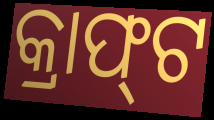
କ୍ରାଫ୍‌ଟ